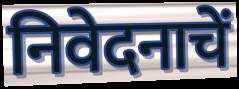
निवेदनाचें